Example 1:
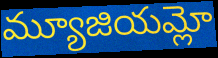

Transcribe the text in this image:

మ్యూజియమ్లో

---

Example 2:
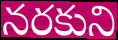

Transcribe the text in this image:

నరకుని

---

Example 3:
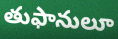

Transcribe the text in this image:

తుఫానులూ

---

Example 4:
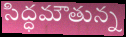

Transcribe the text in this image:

సిద్ధమౌతున్న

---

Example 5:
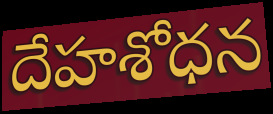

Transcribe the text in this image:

దేహశోధన